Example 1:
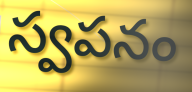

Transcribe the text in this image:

స్వపనం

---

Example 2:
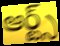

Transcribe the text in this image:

ఆర్ట్స్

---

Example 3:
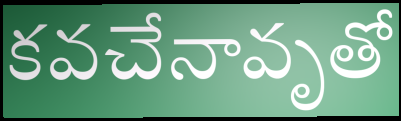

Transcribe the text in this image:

కవచేనావృతో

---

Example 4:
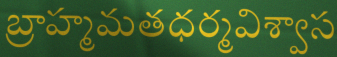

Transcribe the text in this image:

బ్రాహ్మమతధర్మవిశ్వాస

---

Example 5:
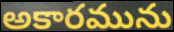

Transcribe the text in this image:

అకారమును